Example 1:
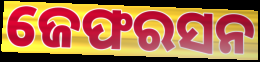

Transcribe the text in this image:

ଜେଫରସନ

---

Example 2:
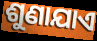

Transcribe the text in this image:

ଶୁଣାଯାଏ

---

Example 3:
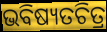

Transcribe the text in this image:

ଭବିଷ୍ୟତଚିତ୍ର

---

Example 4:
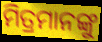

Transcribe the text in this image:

ମିତ୍ରମାନଙ୍କୁ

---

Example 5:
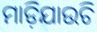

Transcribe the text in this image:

ମାଡ଼ିଯାଉଚି